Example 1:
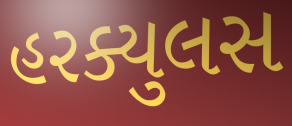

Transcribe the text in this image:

હરક્યુલસ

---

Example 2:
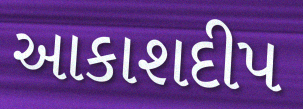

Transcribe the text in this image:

આકાશદીપ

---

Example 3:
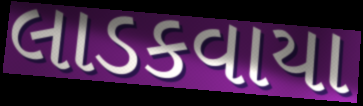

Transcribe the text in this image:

લાડકવાયા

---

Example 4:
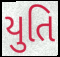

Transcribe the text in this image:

યુતિ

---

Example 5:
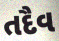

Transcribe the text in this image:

તદૈવ